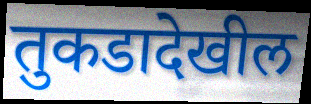
तुकडादेखील